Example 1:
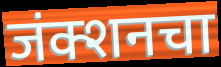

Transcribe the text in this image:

जंक्शनचा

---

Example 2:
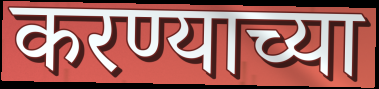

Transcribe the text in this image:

करण्याच्या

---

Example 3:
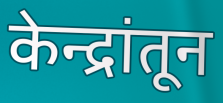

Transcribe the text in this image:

केन्द्रांतून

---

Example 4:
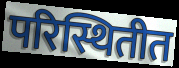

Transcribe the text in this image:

परिस्थितीत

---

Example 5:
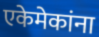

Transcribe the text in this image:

एकेमेकांना